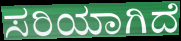
ಸರಿಯಾಗಿದೆ